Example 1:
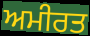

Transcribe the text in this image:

ਅਮੀਰਤ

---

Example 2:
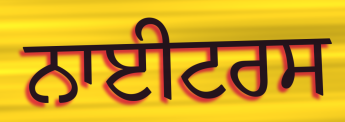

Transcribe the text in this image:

ਨਾਈਟਰਸ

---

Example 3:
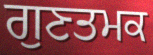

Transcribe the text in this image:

ਗੁਣਤਮਕ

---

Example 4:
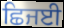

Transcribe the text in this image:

ਛਿਜਈ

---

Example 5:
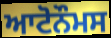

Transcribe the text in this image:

ਆਟੋਨੌਮਸ